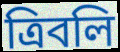
ত্রিবলি